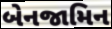
બેનજામિન